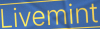
Livemint